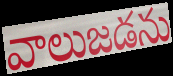
వాలుజడను